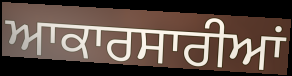
ਆਕਾਰਸਾਰੀਆਂ